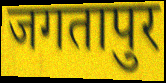
जगतापुर